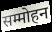
सम्मोहन